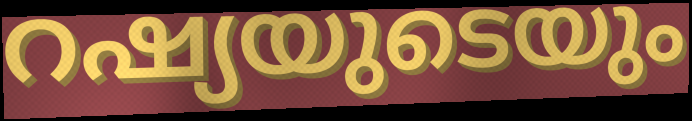
റഷ്യയുടെയും